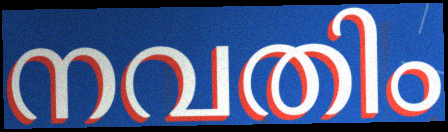
നവതിം